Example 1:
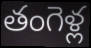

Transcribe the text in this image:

తంగెళ్ల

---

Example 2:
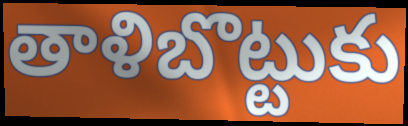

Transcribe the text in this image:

తాళిబొట్టుకు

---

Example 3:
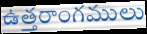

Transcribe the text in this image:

ఉత్తరాంగములు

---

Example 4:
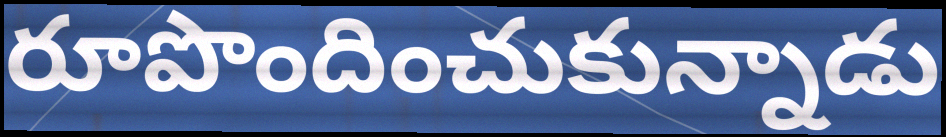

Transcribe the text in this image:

రూపొందించుకున్నాడు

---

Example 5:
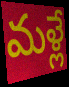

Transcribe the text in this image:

మళ్లే